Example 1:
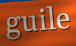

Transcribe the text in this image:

guile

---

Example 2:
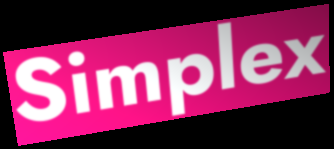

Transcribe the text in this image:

Simplex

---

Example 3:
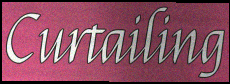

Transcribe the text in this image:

Curtailing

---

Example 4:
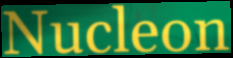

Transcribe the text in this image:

Nucleon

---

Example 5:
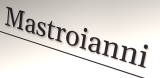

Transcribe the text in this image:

Mastroianni